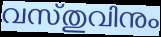
വസ്‌തുവിനും